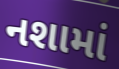
નશામાં